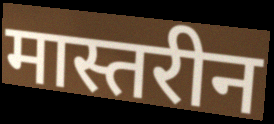
मास्तरीन